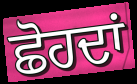
ਛੋਹਦਾਂ